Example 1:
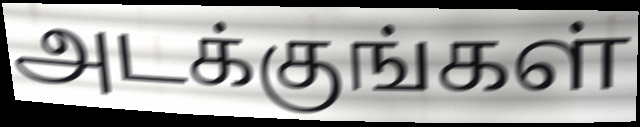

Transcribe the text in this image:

அடக்குங்கள்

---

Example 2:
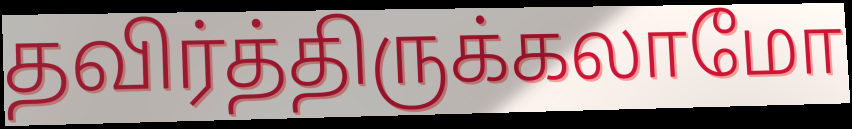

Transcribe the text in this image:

தவிர்த்திருக்கலாமோ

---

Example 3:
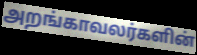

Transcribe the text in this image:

அறங்காவலர்களின்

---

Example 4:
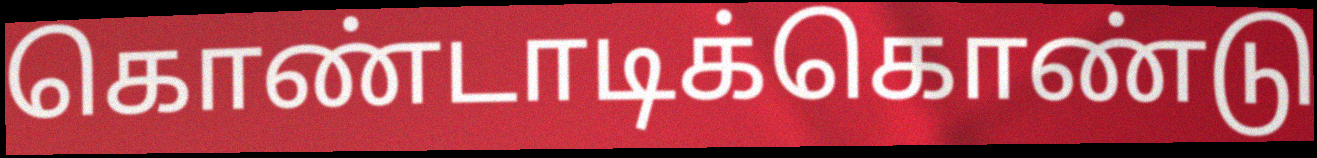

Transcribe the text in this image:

கொண்டாடிக்கொண்டு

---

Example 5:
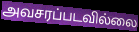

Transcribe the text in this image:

அவசரப்படவில்லை